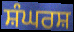
ਸ਼ੰਘਰਸ਼